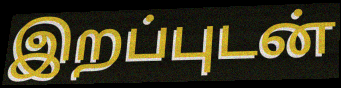
இறப்புடன்